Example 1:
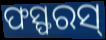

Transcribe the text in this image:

ଫସ୍ଫରସ୍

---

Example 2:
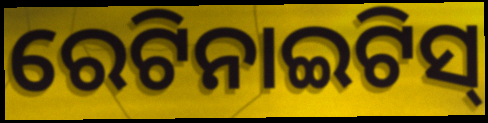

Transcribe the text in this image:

ରେଟିନାଇଟିସ୍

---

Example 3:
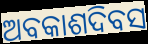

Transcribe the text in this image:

ଅବକାଶଦିବସ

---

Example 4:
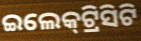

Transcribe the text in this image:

ଇଲେକ୍‌ଟ୍ରିସିଟି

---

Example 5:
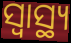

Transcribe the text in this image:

ସ୍ୱାସ୍ଥ୍ୟ